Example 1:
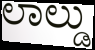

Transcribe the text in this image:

ಲಾಲ್ಡು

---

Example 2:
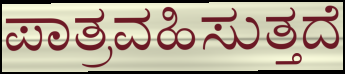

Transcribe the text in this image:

ಪಾತ್ರವಹಿಸುತ್ತದೆ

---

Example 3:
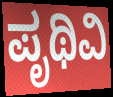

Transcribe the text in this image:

ಪೃಥಿವಿ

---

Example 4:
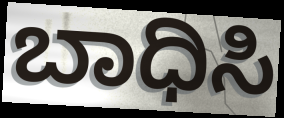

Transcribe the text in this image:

ಬಾಧಿಸಿ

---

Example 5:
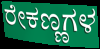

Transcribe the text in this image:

ರೇಕಣ್ಣಗಳ